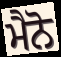
ਮੈਨੋ